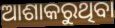
ଆଶାକରୁଥିବା